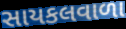
સાયકલવાળા